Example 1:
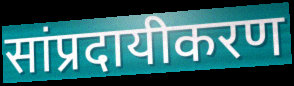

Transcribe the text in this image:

सांप्रदायीकरण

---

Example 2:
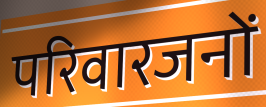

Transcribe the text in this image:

परिवारजनों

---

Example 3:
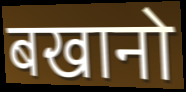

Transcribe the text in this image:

बखानो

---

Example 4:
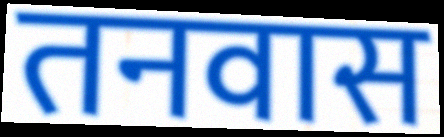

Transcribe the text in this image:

तनवास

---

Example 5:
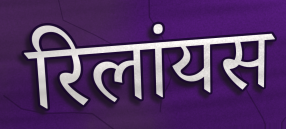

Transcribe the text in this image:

रिलांयस